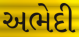
અભેદી